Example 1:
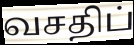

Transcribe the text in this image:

வசதிப்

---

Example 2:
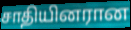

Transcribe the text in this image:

சாதியினரான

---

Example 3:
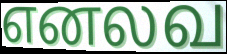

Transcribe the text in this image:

எனலவ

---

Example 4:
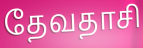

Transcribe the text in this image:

தேவதாசி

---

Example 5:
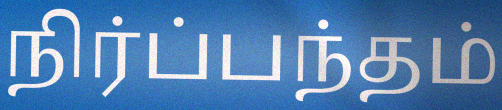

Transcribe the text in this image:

நிர்ப்பந்தம்